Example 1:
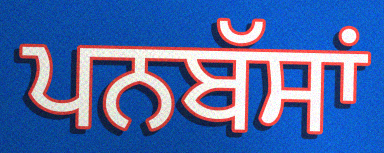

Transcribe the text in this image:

ਪਨਬੱਸਾਂ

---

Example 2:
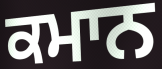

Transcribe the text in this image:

ਕਮਾਨ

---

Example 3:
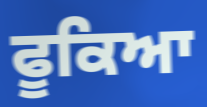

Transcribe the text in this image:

ਫੂਕਿਆ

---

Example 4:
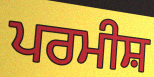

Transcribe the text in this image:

ਪਰਮੀਸ਼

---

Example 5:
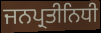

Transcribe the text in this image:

ਜਨਪ੍ਰਤੀਨਿਧੀ